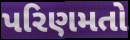
પરિણમતો